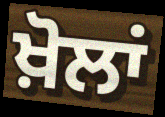
ਖ਼ੋਲਾਂ